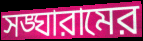
সঙ্ঘারামের